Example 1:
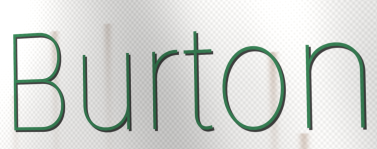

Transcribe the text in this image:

Burton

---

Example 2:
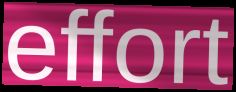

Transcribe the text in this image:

effort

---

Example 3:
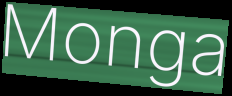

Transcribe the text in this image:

Monga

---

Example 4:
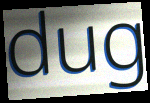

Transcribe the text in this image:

dug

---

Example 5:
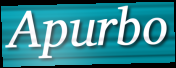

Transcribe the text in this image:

Apurbo